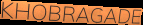
KHOBRAGADE